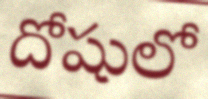
దోషులో